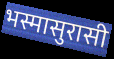
भस्मासुरासी